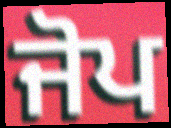
ਜੋਪ